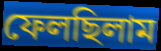
ফেলছিলাম